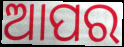
ଆପର